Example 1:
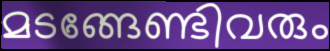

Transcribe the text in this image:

മടങ്ങേണ്ടിവരും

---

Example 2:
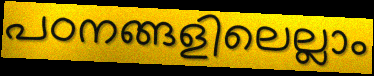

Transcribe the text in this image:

പഠനങ്ങളിലെല്ലാം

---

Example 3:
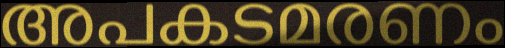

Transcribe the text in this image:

അപകടമരണം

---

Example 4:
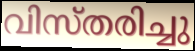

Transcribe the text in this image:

വിസ്തരിച്ചു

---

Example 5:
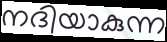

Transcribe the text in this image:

നദിയാകുന്ന